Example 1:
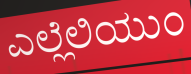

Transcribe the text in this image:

ಎಲ್ಲೆಲಿಯುಂ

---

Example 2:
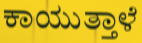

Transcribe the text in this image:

ಕಾಯುತ್ತಾಳೆ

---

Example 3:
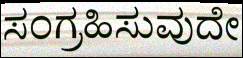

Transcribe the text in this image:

ಸಂಗ್ರಹಿಸುವುದೇ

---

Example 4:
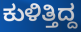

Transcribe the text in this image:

ಕುಳಿತ್ತಿದ್ದ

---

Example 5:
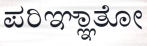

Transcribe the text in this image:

ಪರಿಞ್ಞಾತೋ